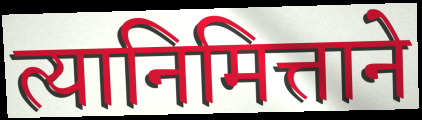
त्यानिमित्ताने